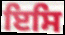
ਇਸਿ